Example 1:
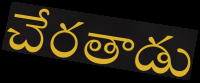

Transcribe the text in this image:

చేరతాడు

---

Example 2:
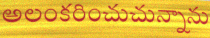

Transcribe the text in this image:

అలంకరించుచున్నాను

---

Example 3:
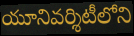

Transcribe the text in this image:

యూనివర్శిటీలోని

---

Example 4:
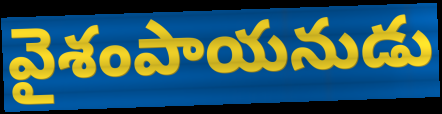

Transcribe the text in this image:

వైశంపాయనుడు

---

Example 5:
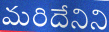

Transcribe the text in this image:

మరిదేనిని